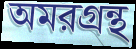
অমরগ্রন্থ